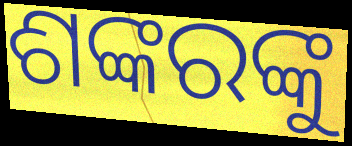
ଶଙ୍କରଙ୍କୁ